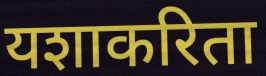
यशाकरिता